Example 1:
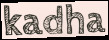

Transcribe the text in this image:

kadha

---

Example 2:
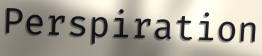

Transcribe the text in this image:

Perspiration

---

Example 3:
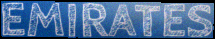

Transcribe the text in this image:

EMIRATES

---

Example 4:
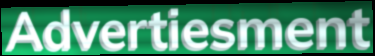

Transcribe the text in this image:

Advertiesment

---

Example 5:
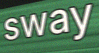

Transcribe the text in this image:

sway